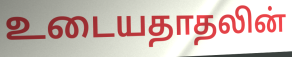
உடையதாதலின்